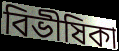
বিভীষিকা